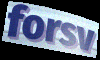
forsv